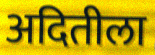
अदितीला